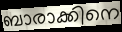
ബാരാക്കിനെ